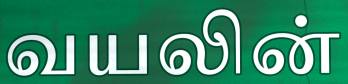
வயலின்